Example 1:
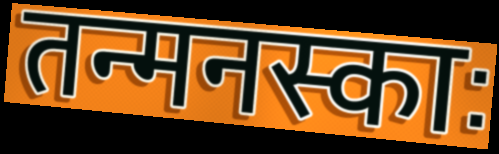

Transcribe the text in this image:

तन्मनस्काः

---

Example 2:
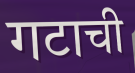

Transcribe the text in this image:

गटाची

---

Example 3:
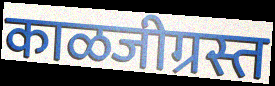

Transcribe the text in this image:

काळजीग्रस्त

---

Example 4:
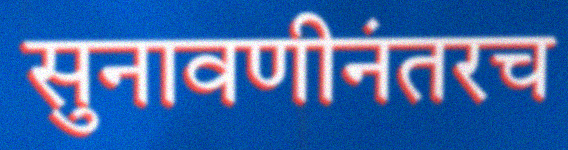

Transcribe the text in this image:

सुनावणीनंतरच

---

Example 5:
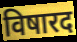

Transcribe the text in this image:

विषारद